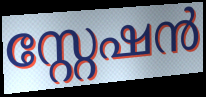
സ്റ്റേഷൻ